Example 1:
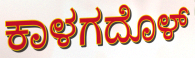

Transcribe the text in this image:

ಕಾಳಗದೊಳ್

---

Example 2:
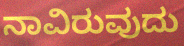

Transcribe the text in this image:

ನಾವಿರುವುದು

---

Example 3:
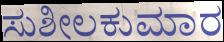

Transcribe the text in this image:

ಸುಶೀಲಕುಮಾರ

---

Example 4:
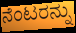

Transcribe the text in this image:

ನೆಂಟರನ್ನು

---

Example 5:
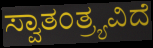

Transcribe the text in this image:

ಸ್ವಾತಂತ್ರ್ಯವಿದೆ